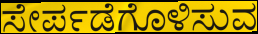
ಸೇರ್ಪಡೆಗೊಳಿಸುವ